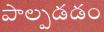
పాల్పడడం